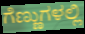
ಗೆಣ್ಣುಗಳಲ್ಲಿ